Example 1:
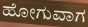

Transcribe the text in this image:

ಹೋಗುವಾಗ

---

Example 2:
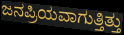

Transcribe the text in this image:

ಜನಪ್ರಿಯವಾಗುತ್ತಿತ್ತು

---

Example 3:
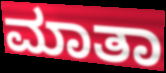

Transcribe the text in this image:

ಮಾತಾ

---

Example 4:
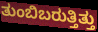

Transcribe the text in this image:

ತುಂಬಿಬರುತ್ತಿತ್ತು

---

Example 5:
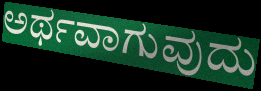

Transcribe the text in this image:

ಅರ್ಥವಾಗುವುದು